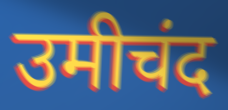
उमीचंद